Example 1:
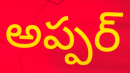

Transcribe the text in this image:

అప్పర్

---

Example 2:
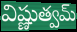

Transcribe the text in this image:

విష్ణుత్వమ్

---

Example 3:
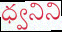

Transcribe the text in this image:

ధ్వనిని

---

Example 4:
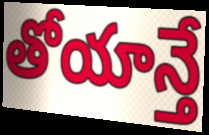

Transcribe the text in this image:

తోయాన్తే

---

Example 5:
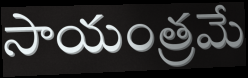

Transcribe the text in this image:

సాయంత్రమే